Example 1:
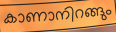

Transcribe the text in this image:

കാണാനിറങ്ങും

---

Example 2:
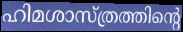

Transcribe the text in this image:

ഹിമശാസ്ത്രത്തിന്റെ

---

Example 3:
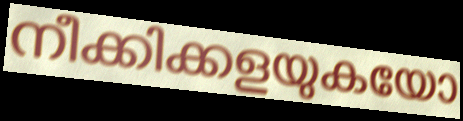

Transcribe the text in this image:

നീക്കിക്കളയുകയോ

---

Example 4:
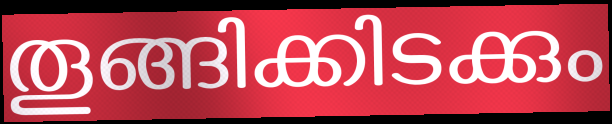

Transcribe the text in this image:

തൂങ്ങിക്കിടക്കും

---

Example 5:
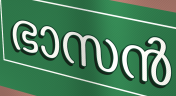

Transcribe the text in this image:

ഭാസൻ